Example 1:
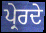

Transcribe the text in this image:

ਪ੍ਰੇਰਦੇ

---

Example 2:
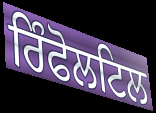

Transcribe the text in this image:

ਰਿੰਫੋਲਟਿਲ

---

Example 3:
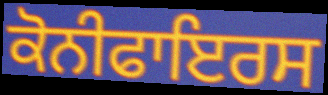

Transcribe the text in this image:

ਕੋਨੀਫਾਇਰਸ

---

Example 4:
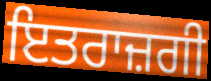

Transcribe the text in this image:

ਇਤਰਾਜ਼ਗੀ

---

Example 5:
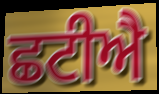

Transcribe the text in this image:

ਛਟੀਐ